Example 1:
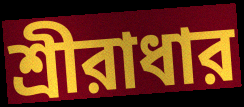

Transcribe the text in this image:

শ্রীরাধার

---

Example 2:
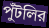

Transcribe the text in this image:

পুঁটলির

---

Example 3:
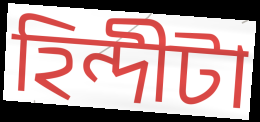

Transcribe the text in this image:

হিন্দীটা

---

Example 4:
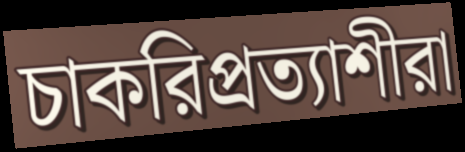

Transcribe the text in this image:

চাকরিপ্রত্যাশীরা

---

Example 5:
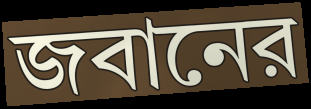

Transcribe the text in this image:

জবানের